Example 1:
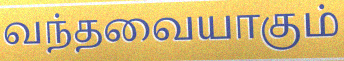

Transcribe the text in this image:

வந்தவையாகும்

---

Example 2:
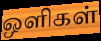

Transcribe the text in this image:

ஒளிகள்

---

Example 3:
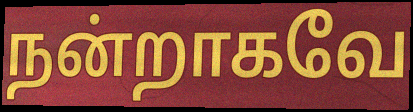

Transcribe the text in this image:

நன்றாகவே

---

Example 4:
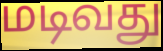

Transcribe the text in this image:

மடிவது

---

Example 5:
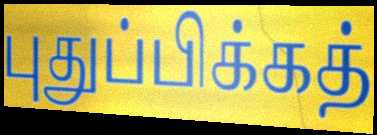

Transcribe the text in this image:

புதுப்பிக்கத்